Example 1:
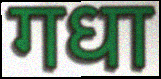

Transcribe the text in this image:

गधा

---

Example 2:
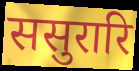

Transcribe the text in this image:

ससुरारि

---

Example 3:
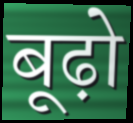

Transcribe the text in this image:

बूढ़ो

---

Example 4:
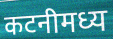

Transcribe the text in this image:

कटनीमध्य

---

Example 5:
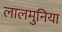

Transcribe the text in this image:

लालमुनिया